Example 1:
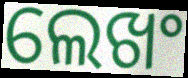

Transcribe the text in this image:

ଲେଖଂ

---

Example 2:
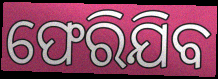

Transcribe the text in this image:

ଫେରିଯିବ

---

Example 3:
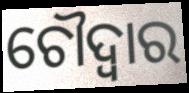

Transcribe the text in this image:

ଚୌଦ୍ବାର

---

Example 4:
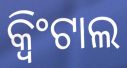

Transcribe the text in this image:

କ୍ୱିଂଟାଲ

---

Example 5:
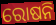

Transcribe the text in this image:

ରୋଷନି